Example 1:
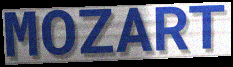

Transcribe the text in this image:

MOZART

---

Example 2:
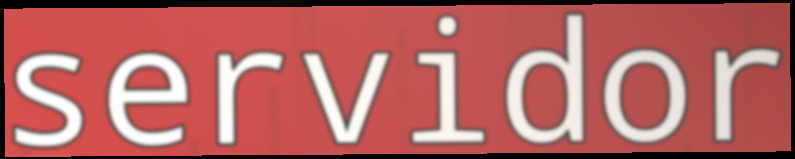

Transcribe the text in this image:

servidor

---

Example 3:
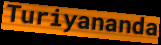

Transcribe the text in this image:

Turiyananda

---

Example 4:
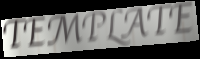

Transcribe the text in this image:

TEMPLATE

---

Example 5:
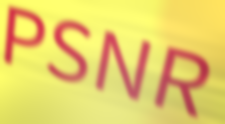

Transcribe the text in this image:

PSNR